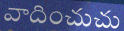
వాదించుచు